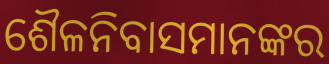
ଶୈଳନିବାସମାନଙ୍କର